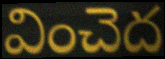
వించెద